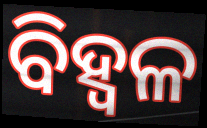
ବିହ୍ଵଳ